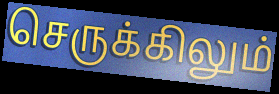
செருக்கிலும்